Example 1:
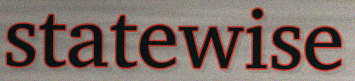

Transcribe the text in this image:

statewise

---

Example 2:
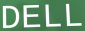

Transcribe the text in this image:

DELL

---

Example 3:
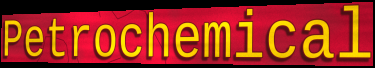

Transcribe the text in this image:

Petrochemical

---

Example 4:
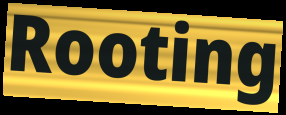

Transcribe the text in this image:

Rooting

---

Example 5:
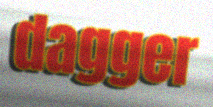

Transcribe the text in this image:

dagger